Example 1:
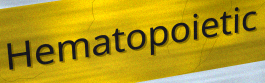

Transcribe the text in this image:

Hematopoietic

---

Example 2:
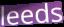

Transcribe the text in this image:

leeds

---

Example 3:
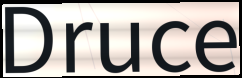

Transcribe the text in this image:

Druce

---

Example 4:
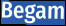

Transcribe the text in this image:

Begam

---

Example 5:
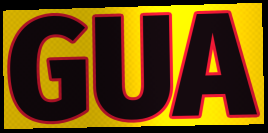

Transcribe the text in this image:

GUA